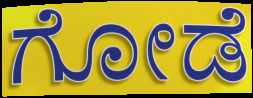
ಗೋಡೆ